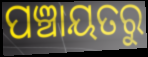
ପଞ୍ଚାୟତରୁ